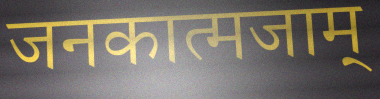
जनकात्मजाम्